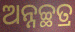
ଅନ୍ନଚ୍ଛତ୍ର